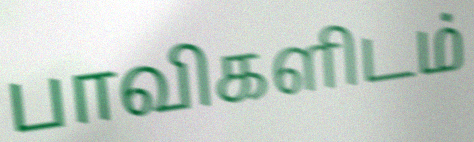
பாவிகளிடம்